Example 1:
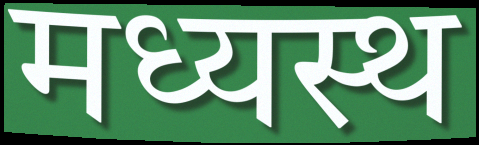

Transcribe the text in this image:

मध्यस्थ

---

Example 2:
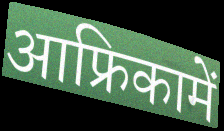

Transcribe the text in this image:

आफ्रिकामें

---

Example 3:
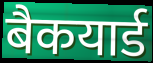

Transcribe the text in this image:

बैकयार्ड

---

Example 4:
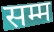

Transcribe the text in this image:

सम्म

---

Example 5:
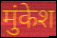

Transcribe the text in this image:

मुंकेश